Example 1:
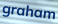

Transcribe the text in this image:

graham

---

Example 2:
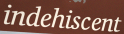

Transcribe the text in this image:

indehiscent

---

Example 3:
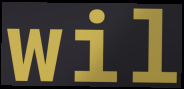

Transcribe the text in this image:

wil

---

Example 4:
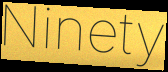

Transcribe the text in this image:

Ninety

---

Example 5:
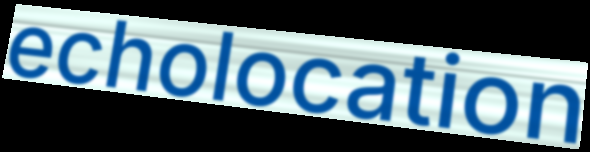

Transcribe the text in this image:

echolocation